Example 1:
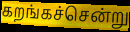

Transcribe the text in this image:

கறங்கச்சென்று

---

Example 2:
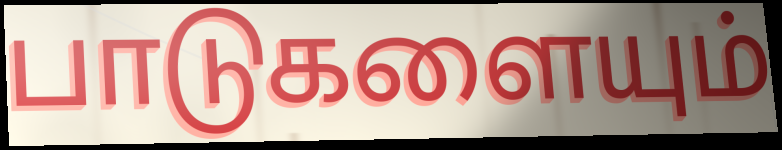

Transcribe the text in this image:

பாடுகளையும்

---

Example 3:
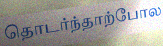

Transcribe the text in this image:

தொடர்ந்தாற்போல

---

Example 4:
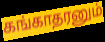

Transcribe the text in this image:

கங்காதரனும்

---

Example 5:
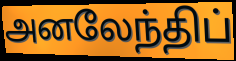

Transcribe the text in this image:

அனலேந்திப்